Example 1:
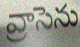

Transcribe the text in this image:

వ్రాసెను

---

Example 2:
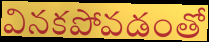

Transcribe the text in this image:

వినకపోవడంతో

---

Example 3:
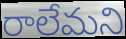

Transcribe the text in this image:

రాలేమని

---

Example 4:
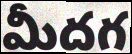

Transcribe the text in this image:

మీదగ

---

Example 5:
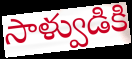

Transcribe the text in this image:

సాళ్వుడికి